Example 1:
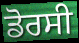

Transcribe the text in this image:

ਡੋਰਸੀ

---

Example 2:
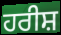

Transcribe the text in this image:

ਹਰੀਸ਼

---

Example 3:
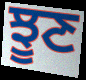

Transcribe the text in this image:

ਝੂਣ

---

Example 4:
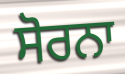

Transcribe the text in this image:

ਸੋਰਨਾ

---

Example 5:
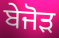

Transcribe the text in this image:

ਬੇਜੋੜ